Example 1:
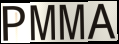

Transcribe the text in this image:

PMMA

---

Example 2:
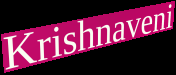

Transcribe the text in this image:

Krishnaveni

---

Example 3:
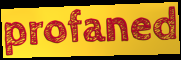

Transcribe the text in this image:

profaned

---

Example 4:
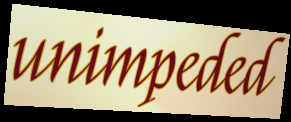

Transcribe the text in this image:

unimpeded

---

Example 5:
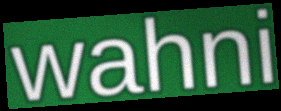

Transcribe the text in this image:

wahni